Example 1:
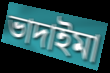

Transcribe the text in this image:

ভাদাইমা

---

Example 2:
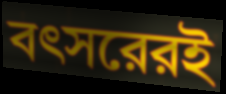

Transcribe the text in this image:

বৎসরেরই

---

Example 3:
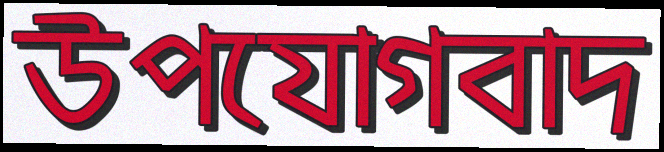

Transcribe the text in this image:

উপযোগবাদ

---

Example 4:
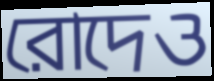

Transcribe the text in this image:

রোদেও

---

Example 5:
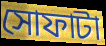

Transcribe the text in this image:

সোফাটা